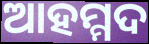
ଆହମ୍ମଦ